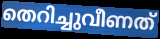
തെറിച്ചുവീണത്